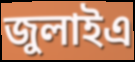
জুলাইএ